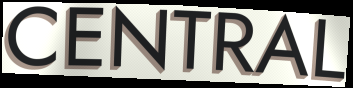
CENTRAL